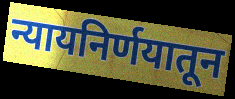
न्यायनिर्णयातून